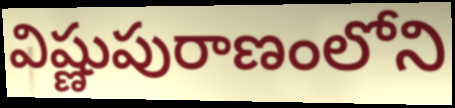
విష్ణుపురాణంలోని